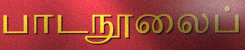
பாடநூலைப்